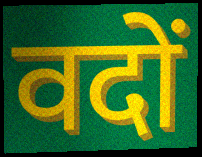
वदों